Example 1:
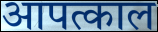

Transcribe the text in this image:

आपत्काल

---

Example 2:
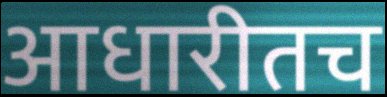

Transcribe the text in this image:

आधारीतच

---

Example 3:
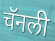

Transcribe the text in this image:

चॅनली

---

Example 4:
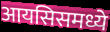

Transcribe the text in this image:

आयसिसमध्ये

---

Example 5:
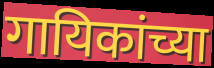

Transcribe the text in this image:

गायिकांच्या